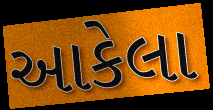
આકેલા